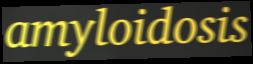
amyloidosis